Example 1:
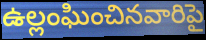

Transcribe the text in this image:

ఉల్లంఘించినవారిపై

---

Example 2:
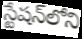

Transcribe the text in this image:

స్టేషన్‌లోని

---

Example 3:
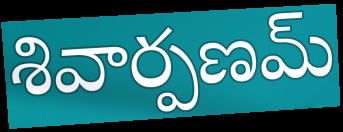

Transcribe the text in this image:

శివార్పణమ్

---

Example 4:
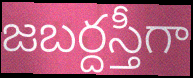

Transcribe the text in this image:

జబర్దస్తీగా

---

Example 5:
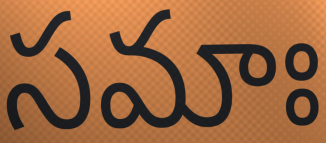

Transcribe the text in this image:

సమాః